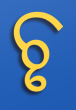
ଚୃ